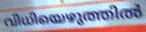
വിധിയെഴുത്തിൽ